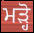
ਮੜ੍ਹੋ